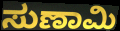
ಸುಣಾಮಿ